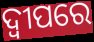
ଦ୍ୱୀପରେ